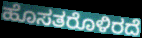
ಹೊಸತರೊಳಿರದೆ